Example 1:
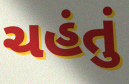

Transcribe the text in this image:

ચહંતું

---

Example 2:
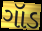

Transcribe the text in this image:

ગૉડ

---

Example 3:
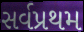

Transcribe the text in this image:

સર્વપ્રથમ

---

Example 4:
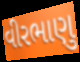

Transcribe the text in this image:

વીરભાણુ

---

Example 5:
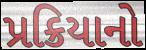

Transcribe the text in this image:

પ્રક્રિયાનો